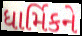
ધાર્મિકને